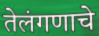
तेलंगणाचे